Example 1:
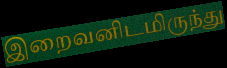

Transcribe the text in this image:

இறைவனிடமிருந்து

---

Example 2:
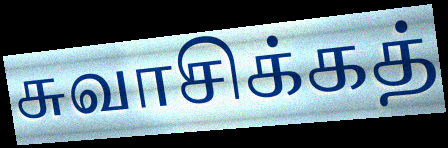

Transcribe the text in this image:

சுவாசிக்கத்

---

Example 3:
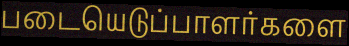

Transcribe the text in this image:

படையெடுப்பாளர்களை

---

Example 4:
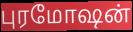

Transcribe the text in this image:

புரமோஷன்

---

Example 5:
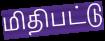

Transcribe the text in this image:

மிதிபட்டு